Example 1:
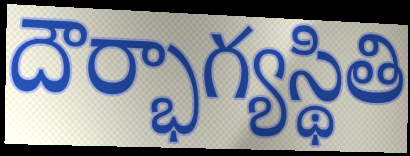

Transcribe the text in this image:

దౌర్భాగ్యస్థితి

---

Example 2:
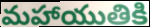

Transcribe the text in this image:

మహాయుతికి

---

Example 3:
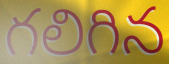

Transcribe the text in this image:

గలిగిన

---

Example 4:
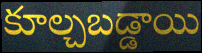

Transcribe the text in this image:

కూల్చబడ్డాయి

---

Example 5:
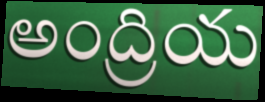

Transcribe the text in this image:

అంద్రియ